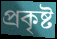
প্রকৃষ্ট